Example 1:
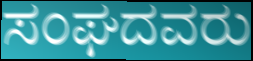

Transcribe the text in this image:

ಸಂಘದವರು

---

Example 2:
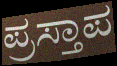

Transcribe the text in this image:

ಪ್ರಸ್ತಾಪ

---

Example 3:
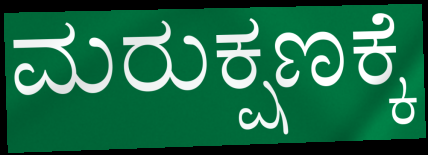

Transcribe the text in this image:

ಮರುಕ್ಷಣಕ್ಕೆ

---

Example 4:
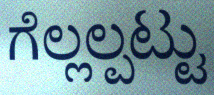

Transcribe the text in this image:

ಗೆಲ್ಲಲ್ಪಟ್ಟು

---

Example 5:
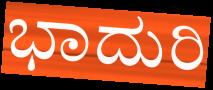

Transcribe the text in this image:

ಭಾದುರಿ